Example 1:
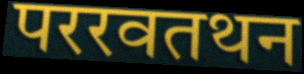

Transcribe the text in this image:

पररवतथन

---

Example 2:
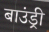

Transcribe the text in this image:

बाउंड्री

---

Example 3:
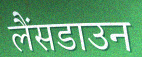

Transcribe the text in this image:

लैंसडाउन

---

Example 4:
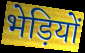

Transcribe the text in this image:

भेड़ियों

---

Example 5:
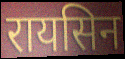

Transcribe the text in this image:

रायसिन